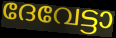
ദേവേട്ടാ